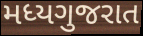
મધ્યગુજરાત